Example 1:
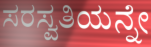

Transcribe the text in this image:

ಸರಸ್ವತಿಯನ್ನೇ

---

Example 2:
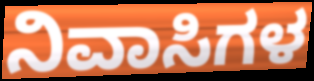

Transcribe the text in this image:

ನಿವಾಸಿಗಳ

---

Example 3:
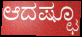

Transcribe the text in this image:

ಆದಷ್ಟೂ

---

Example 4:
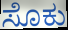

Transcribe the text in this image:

ಸೊಕು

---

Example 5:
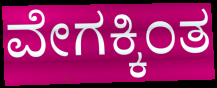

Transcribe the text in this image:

ವೇಗಕ್ಕಿಂತ